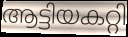
ആട്ടിയകറ്റി